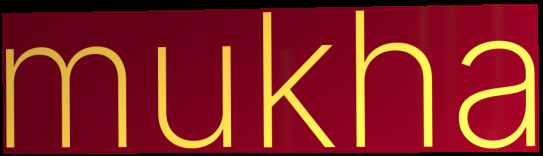
mukha